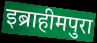
इब्राहीमपुरा